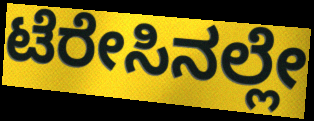
ಟೆರೇಸಿನಲ್ಲೇ